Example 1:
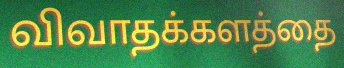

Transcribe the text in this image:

விவாதக்களத்தை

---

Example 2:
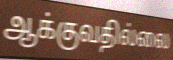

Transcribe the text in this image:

ஆக்குவதில்லை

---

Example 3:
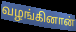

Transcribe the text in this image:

வழங்கினான்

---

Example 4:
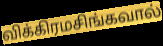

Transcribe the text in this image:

விக்கிரமசிங்கவால்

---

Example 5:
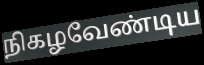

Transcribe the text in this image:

நிகழவேண்டிய